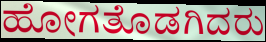
ಹೋಗತೊಡಗಿದರು